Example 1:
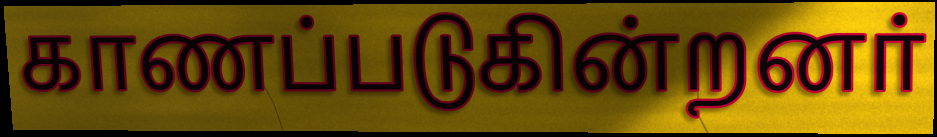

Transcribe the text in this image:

காணப்படுகின்றனர்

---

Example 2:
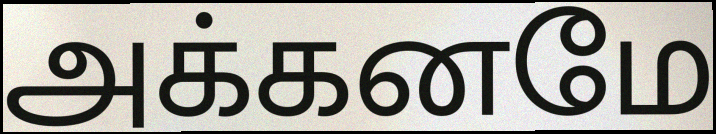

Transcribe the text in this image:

அக்கனமே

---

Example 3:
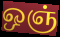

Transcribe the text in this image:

ஒஞ்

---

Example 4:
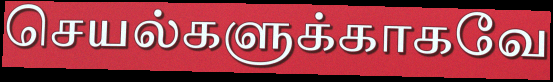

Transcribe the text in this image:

செயல்களுக்காகவே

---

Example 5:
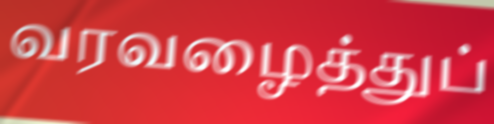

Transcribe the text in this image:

வரவழைத்துப்